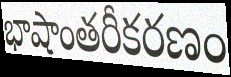
భాషాంతరీకరణం